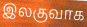
இலகுவாக